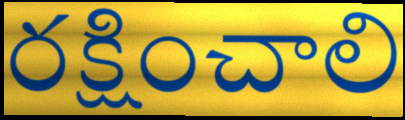
రక్షించాలి